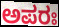
ಅಪರಃ